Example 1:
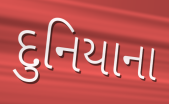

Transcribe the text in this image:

દુનિયાના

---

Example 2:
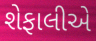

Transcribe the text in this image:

શેફાલીએ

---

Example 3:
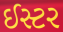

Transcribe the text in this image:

ઈસ્ટર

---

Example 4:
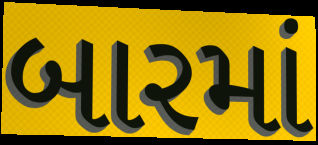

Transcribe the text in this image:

બારમાં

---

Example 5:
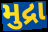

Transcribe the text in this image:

મુદ્રા